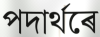
পদাৰ্থৰে